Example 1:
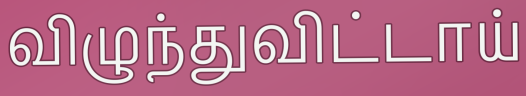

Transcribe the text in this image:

விழுந்துவிட்டாய்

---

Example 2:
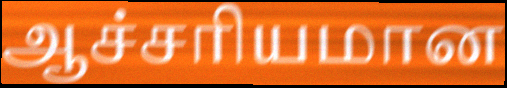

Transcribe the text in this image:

ஆச்சரியமான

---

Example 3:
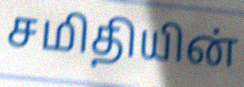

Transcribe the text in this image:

சமிதியின்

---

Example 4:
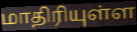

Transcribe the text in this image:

மாதிரியுள்ள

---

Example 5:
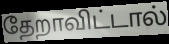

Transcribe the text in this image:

தேறாவிட்டால்